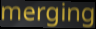
merging